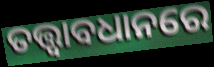
ତତ୍ତ୍ବାବଧାନରେ